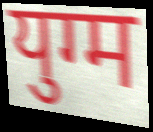
युग्म